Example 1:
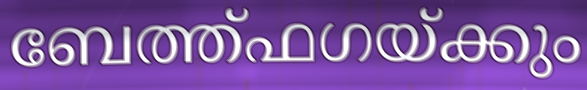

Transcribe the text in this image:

ബേത്ത്ഫഗയ്ക്കും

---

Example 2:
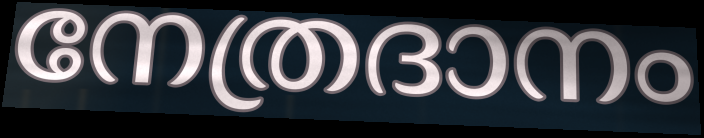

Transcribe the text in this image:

നേത്രദാനം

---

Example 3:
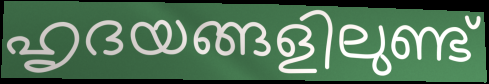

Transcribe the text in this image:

ഹൃദയങ്ങളിലുണ്ട്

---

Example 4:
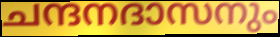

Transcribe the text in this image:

ചന്ദനദാസനും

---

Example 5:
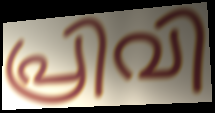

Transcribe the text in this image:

പ്രിവി